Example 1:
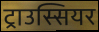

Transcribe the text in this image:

ट्राउस्सियर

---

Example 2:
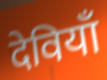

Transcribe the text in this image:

देवियाँ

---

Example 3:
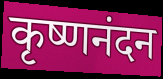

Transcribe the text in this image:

कृष्णनंदन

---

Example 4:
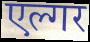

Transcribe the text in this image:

एल्गर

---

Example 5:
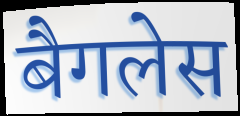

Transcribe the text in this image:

बैगलेस